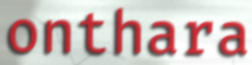
onthara